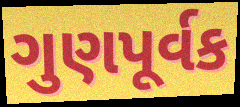
ગુણપૂર્વક